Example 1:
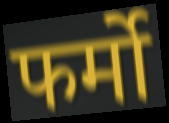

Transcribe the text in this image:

फर्मो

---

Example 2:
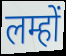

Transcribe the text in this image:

लम्हों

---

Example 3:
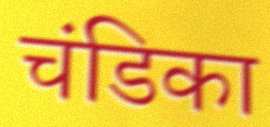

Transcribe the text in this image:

चंडिका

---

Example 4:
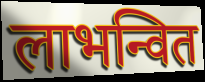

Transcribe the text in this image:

लाभन्वित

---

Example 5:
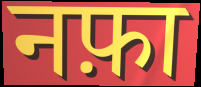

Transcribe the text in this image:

नफ़ा